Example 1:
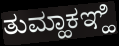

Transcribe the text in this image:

ತುಮ್ಹಾಕಞ್ಹಿ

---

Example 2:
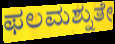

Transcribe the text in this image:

ಫಲಮಶ್ನುತೇ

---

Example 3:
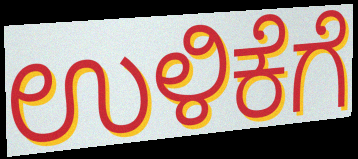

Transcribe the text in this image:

ಉಳಿಕೆಗೆ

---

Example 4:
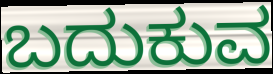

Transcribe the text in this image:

ಬದುಕುವ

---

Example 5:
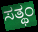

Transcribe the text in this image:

ಸತ್ಥಂ